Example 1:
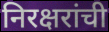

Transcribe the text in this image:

निरक्षरांची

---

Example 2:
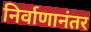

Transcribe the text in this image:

निर्वाणानंतर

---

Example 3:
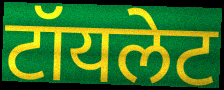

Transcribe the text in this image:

टॉयलेट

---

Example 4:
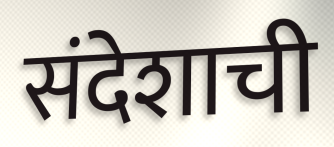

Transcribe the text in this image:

संदेशाची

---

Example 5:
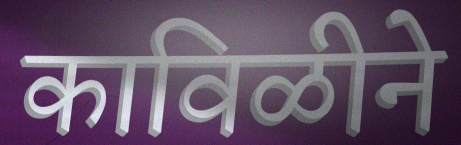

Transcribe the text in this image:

काविळीने